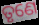
ତୃଣେ